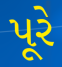
પૂરે